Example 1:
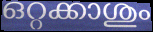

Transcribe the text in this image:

ഒറ്റക്കാശും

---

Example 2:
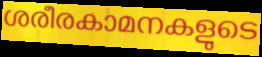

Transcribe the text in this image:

ശരീരകാമനകളുടെ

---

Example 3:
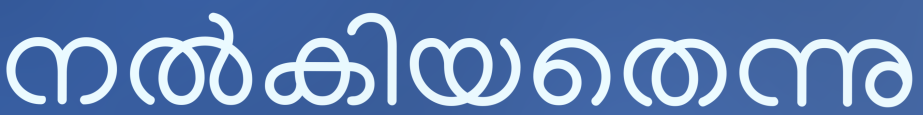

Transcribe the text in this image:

നൽകിയതെന്നു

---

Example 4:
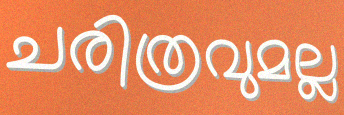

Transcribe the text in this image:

ചരിത്രവുമല്ല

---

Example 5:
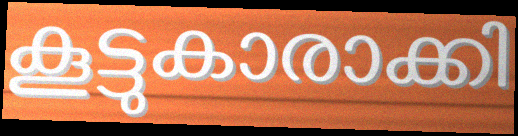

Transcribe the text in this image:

കൂട്ടുകാരാക്കി